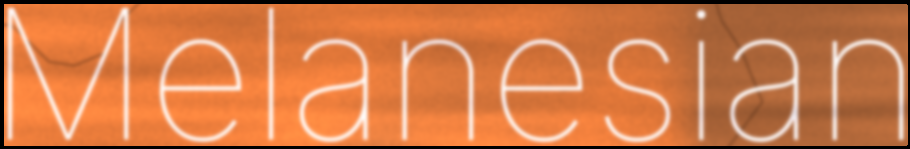
Melanesian